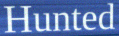
Hunted